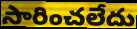
సారించలేదు